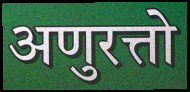
अणुरत्तो